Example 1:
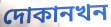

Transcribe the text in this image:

দোকানখন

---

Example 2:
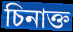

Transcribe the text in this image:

চিনাক্ত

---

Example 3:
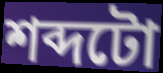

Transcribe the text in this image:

শব্দটো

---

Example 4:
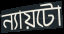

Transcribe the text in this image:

ন্যায়টো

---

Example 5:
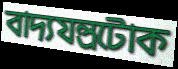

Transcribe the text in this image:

বাদ্যযন্ত্ৰটোক